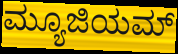
ಮ್ಯೂಜಿಯಮ್